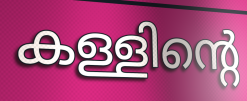
കള്ളിന്റെ